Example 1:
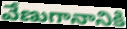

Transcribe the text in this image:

వేణుగానానికి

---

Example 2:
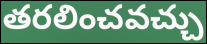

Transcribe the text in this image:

తరలించవచ్చు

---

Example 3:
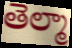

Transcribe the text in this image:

తెల్మా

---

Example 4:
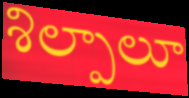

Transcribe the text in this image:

శిల్పాలూ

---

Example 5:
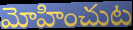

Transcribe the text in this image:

మోహించుట